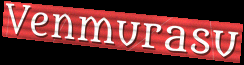
Venmurasu